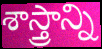
శాస్త్రాన్ని